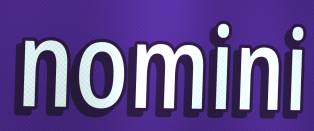
nomini